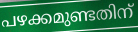
പഴക്കമുണ്ടതിന്